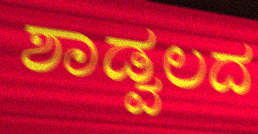
ಶಾಡ್ವಲದ